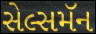
સેલ્સમૅન